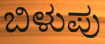
ಬಿಳುಪು